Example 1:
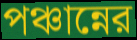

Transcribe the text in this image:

পঞ্চান্নের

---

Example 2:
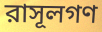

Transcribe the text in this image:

রাসূলগণ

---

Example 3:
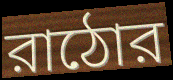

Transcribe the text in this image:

রাঠোর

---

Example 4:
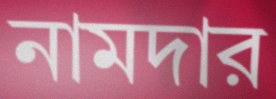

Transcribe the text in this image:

নামদার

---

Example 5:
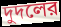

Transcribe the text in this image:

দুদলের